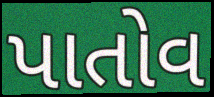
પાતોવ